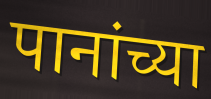
पानांच्या